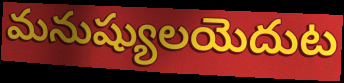
మనుష్యులయెదుట